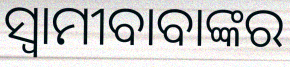
ସ୍ଵାମୀବାବାଙ୍କର